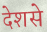
देशसे